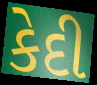
કેદી